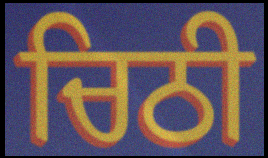
ਚਿਠੀ